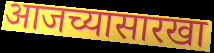
आजच्यासारखा